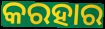
କରହାର